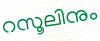
റസൂലിനും